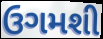
ઉગમશી